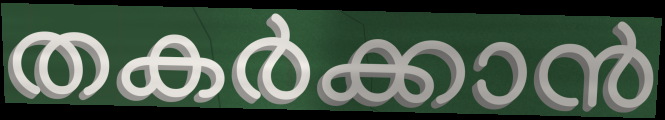
തകർക്കാൻ